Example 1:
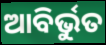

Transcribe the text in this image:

ଆବିର୍ଭୁତ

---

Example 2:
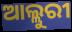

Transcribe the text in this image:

ଆଲ୍ଲୁରୀ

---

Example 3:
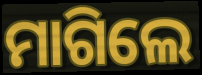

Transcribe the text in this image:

ମାଗିଲେ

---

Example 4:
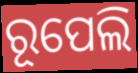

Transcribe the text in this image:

ରୂପେଲି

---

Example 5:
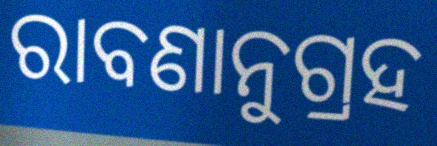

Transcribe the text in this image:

ରାବଣାନୁଗ୍ରହ